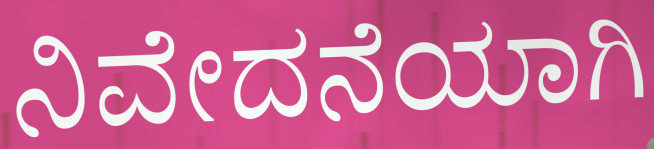
ನಿವೇದನೆಯಾಗಿ